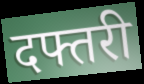
दफ्तरी